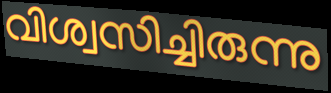
വിശ്വസിച്ചിരുന്നു